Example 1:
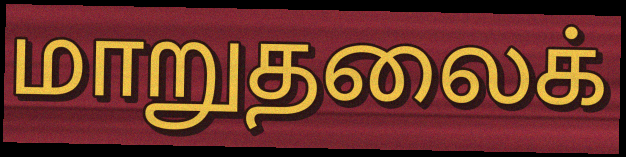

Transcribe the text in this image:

மாறுதலைக்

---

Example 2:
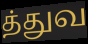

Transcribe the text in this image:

த்துவ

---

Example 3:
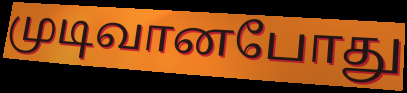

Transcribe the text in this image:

முடிவானபோது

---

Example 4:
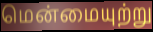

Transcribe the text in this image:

மென்மையுற்று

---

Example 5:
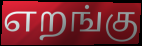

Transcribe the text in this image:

எறங்கு